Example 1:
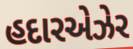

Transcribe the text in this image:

હદારએઝેર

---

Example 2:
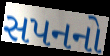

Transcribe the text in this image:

સપનનો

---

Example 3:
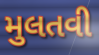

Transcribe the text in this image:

મુલતવી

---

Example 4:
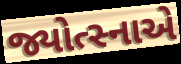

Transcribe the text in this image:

જ્યોત્સ્નાએ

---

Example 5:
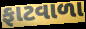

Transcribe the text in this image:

ફાટવાળા